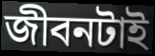
জীবনটাই